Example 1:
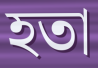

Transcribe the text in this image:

হতা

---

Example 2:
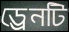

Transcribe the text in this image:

ড্রেনটি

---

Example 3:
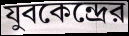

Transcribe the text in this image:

যুবকেন্দ্রের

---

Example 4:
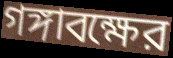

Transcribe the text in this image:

গঙ্গাবক্ষের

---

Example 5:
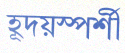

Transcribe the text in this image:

হূদয়স্পর্শী